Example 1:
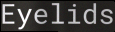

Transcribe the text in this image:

Eyelids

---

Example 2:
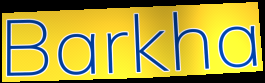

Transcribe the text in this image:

Barkha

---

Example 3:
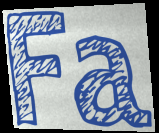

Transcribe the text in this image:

Fa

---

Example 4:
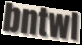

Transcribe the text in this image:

bntwl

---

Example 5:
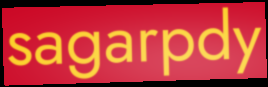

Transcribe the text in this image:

sagarpdy